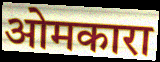
ओमकारा